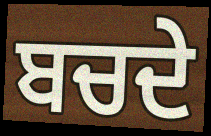
ਬਚਦੇ